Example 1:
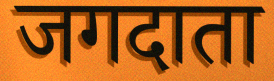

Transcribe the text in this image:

जगदाता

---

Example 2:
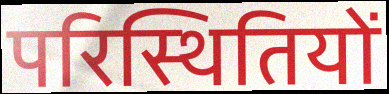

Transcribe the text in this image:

परिस्थितियों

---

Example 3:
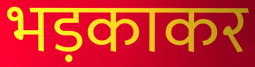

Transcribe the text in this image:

भड़काकर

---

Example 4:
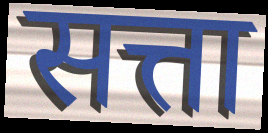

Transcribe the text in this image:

सत्ता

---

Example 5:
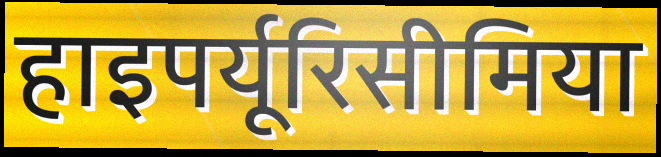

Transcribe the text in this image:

हाइपर्यूरिसीमिया